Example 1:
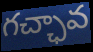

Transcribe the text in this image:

గచ్ఛావ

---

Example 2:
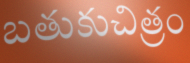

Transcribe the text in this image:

బతుకుచిత్రం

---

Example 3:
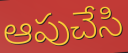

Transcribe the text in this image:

ఆపుచేసి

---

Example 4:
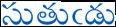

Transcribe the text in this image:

సుతుఁడు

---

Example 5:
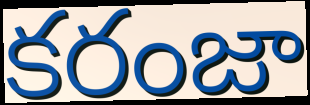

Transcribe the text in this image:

కరంజా